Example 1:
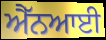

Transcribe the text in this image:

ਐੱਨਆਈ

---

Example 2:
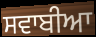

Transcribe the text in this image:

ਸਵਾਬੀਆ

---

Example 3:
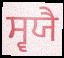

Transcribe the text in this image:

ਸ੍ਵਯੈ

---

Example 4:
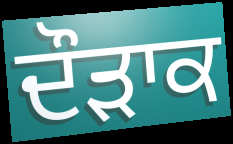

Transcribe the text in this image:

ਦੌੜਾਕ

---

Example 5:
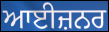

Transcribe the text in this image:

ਆਈਜ਼ਨਰ